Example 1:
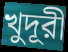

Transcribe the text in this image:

খুদূরী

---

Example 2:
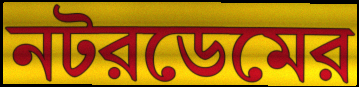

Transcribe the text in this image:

নটরডেমের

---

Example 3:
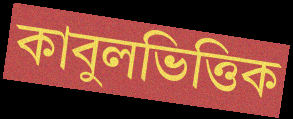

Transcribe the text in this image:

কাবুলভিত্তিক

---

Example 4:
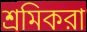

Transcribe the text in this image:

শ্রমিকরা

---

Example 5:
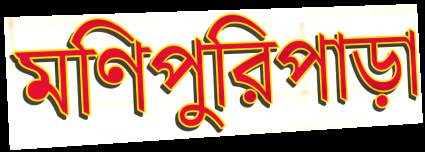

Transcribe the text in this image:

মণিপুরিপাড়া